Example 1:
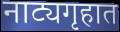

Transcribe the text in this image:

नाट्यगृहात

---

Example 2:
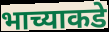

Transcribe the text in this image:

भाच्याकडे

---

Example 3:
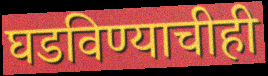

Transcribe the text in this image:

घडविण्याचीही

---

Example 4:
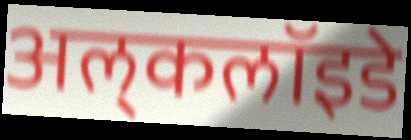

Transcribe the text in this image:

अल्कलॉइडे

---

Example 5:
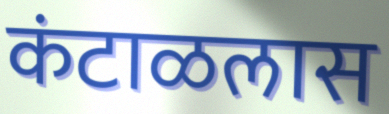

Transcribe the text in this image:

कंटाळलास